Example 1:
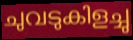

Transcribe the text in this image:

ചുവടുകിളച്ചു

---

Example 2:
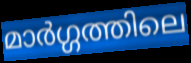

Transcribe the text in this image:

മാർഗ്ഗത്തിലെ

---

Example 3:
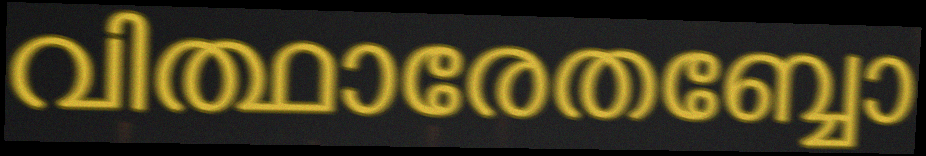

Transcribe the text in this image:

വിത്ഥാരേതബ്ബോ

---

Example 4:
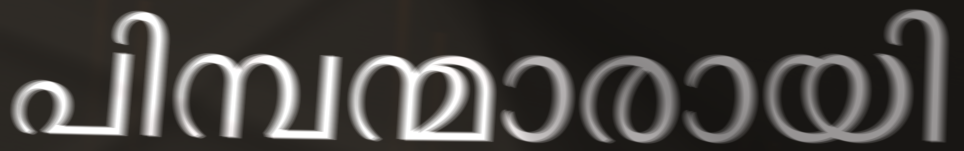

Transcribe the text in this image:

പിമ്പന്മാരായി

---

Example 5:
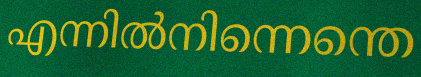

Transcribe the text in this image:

എന്നിൽനിന്നെന്തെ